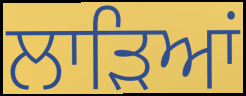
ਲਾੜਿਆਂ